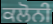
ਕਲੋਨੀ